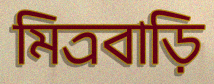
মিত্রবাড়ি